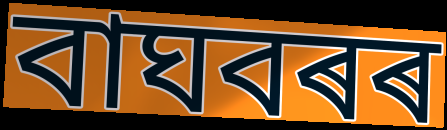
বাঘবৰৰ